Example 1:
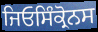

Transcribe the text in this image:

ਜਿਓਸਿੰਕ੍ਰੋਨਸ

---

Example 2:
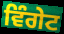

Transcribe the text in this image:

ਵਿੰਗੇਟ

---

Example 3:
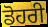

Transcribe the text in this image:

ਡੋਹਰੀ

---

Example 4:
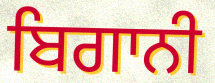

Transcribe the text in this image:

ਬਿਗਾਨੀ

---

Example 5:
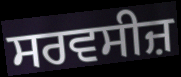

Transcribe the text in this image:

ਸਰਵਸੀਜ਼